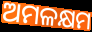
ଅମଳକ୍ଷମ